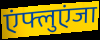
एंफ्लुएंजा